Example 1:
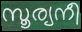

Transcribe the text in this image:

സൂര്യനീ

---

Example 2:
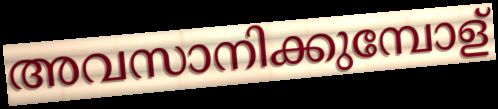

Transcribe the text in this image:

അവസാനിക്കുമ്പോള്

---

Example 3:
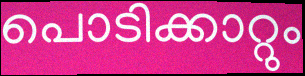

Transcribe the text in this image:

പൊടിക്കാറ്റും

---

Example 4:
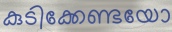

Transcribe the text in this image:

കുടിക്കേണ്ടയോ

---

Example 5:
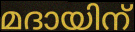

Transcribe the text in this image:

മദായിന്